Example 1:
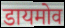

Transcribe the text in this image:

डायमोव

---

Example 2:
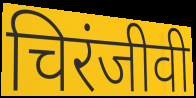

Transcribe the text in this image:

चिरंजीवी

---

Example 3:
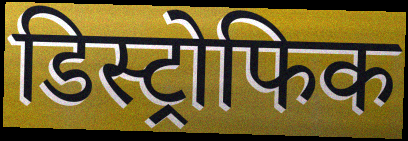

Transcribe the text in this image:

डिस्ट्रोफिक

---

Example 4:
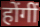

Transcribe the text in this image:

होंगीं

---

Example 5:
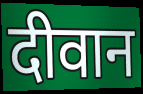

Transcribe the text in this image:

दीवान